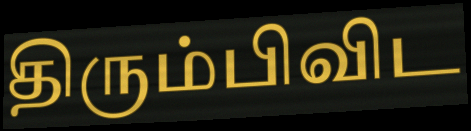
திரும்பிவிட